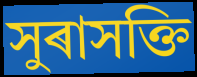
সুৰাসক্তি